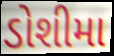
ડોશીમા